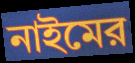
নাইমের